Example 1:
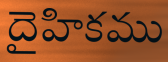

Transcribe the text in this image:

దైహికము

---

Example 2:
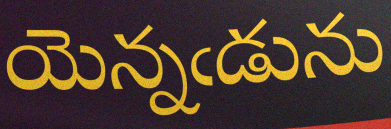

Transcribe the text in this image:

యెన్నఁడును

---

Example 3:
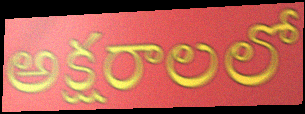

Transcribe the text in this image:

అక్షరాలలో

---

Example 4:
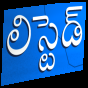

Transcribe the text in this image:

లిస్టెడ్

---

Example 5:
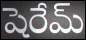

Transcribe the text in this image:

షెరేమ్